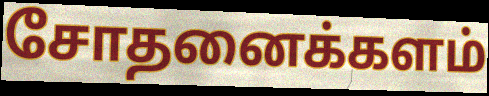
சோதனைக்களம்